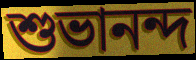
শুভানন্দ